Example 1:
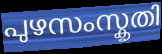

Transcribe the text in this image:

പുഴസംസ്കൃതി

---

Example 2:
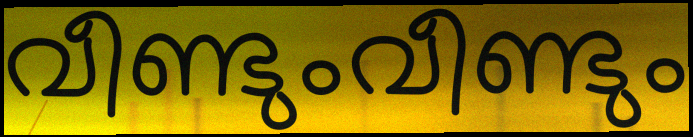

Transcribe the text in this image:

വീണ്ടുംവീണ്ടും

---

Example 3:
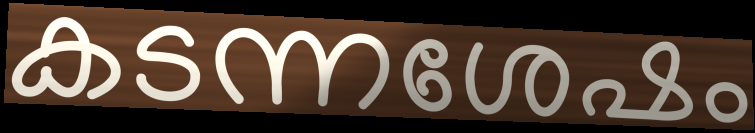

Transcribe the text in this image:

കടന്നശേഷം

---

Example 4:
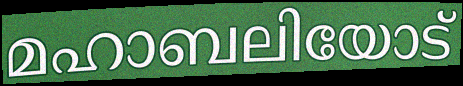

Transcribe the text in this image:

മഹാബലിയോട്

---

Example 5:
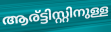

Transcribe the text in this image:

ആര്ട്ടിസ്റ്റിനുള്ള